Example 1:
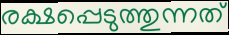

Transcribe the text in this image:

രക്ഷപ്പെടുത്തുന്നത്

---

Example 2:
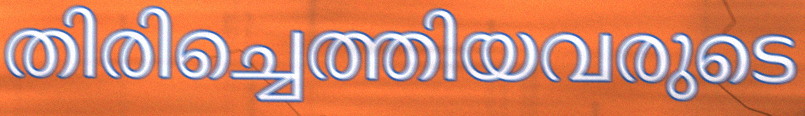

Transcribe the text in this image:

തിരിച്ചെത്തിയവരുടെ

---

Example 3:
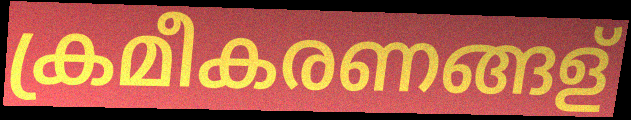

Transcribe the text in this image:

ക്രമീകരണങ്ങള്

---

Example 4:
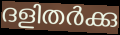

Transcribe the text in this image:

ദളിതർക്കു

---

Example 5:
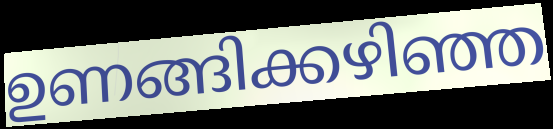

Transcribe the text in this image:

ഉണങ്ങിക്കഴിഞ്ഞ